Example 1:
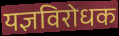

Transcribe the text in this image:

यज्ञविरोधक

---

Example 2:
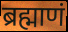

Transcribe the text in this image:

ब्रह्माणं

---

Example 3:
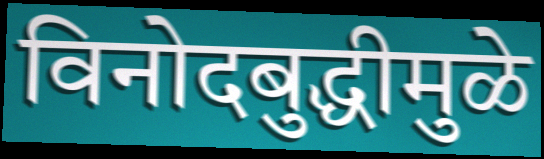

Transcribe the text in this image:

विनोदबुद्धीमुळे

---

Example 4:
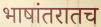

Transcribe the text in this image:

भाषांतरातच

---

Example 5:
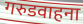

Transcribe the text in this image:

गरुडवाहना